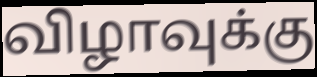
விழாவுக்கு